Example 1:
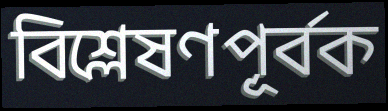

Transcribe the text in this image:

বিশ্লেষণপূর্বক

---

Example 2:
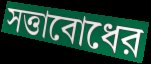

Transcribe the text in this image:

সত্তাবোধের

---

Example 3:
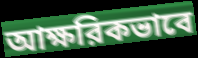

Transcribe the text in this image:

আক্ষরিকভাবে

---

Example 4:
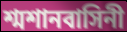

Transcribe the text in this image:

শ্মশানবাসিনী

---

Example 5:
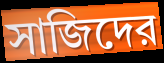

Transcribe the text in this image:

সাজিদের